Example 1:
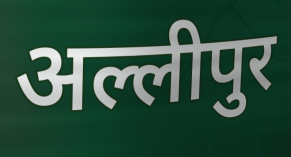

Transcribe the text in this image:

अल्लीपुर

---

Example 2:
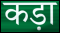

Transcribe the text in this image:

कड़ा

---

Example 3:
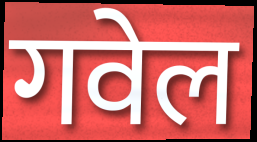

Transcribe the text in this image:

गवेल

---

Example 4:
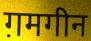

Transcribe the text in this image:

ग़मगीन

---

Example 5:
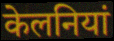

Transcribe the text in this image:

केलनियां